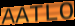
AATLO